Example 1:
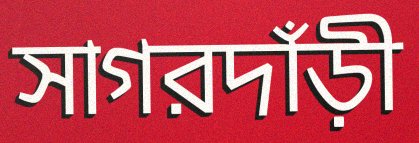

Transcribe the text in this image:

সাগরদাঁড়ী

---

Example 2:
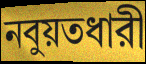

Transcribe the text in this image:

নবুয়তধারী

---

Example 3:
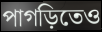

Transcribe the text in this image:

পাগড়িতেও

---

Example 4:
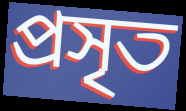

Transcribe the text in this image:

প্রসৃত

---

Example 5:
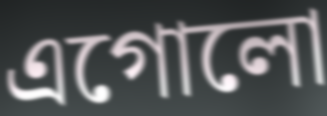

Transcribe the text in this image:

এগোলো